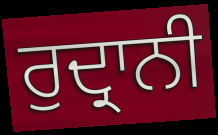
ਰੁਦ੍ਰਾਨੀ